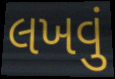
લખવું